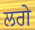
ਲਗੇ